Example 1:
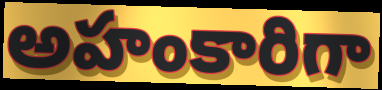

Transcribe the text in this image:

అహంకారిగా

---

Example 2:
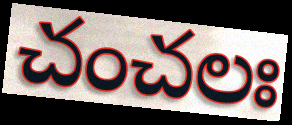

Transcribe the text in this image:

చంచలః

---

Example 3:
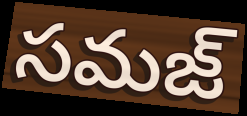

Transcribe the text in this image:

సమజ్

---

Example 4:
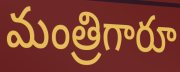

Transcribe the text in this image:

మంత్రిగారూ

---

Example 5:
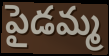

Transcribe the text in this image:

పైడమ్మ